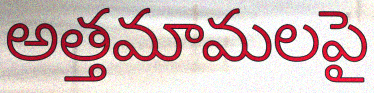
అత్తమామలపై